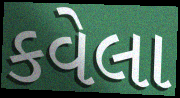
કવેલા